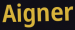
Aigner